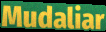
Mudaliar